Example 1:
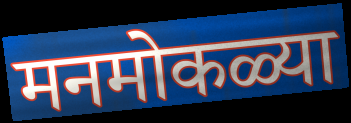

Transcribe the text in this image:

मनमोकळ्या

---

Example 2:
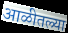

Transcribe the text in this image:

आळीतल्या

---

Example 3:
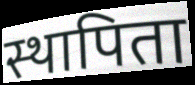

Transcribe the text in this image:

स्थापिता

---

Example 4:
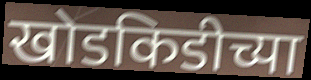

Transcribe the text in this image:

खोडकिडीच्या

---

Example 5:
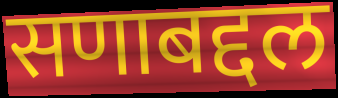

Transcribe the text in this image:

सणाबद्दल